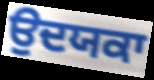
ਉਦਯਕਾ